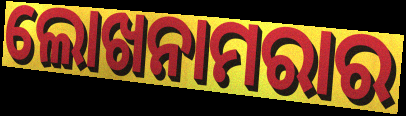
ଲୋଖନାମରାର